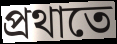
প্ৰথাতে